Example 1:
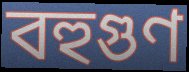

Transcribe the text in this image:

বহুগুণ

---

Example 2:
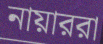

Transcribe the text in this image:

নায়াররা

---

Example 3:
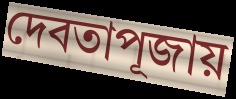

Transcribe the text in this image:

দেবতাপূজায়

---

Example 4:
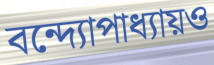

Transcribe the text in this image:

বন্দ্যোপাধ্যায়ও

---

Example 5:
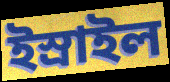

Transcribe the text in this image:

ইস্রাইল